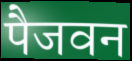
पैजवन